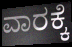
ವಾರಕ್ಕೆ